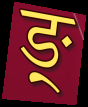
ङ्